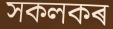
সকলকৰ